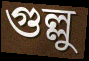
গুল্লু